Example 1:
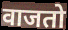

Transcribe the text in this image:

वाजतो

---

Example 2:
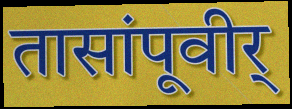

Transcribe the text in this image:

तासांपूवीर्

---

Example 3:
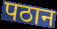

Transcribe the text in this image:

पठान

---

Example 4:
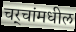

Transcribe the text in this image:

चर्चांमधील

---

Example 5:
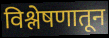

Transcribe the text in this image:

विश्लेषणातून